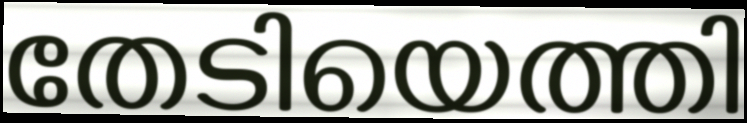
തേടിയെത്തി